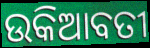
ଉକିଆବତୀ